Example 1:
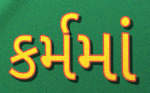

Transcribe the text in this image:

કર્મમાં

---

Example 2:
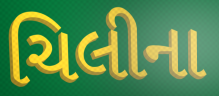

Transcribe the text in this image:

ચિલીના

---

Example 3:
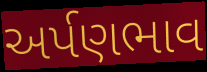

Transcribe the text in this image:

અર્પણભાવ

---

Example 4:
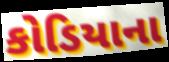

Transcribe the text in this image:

કોડિયાના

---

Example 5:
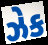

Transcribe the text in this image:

ઝેક